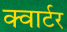
क्वार्टर